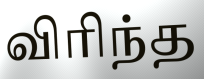
விரிந்த